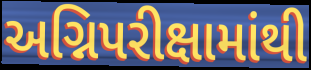
અગ્નિપરીક્ષામાંથી